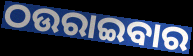
ଠଉରାଇବାର